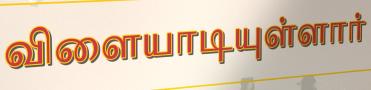
விளையாடியுள்ளார்